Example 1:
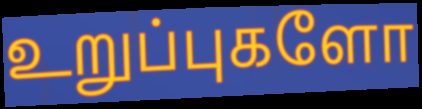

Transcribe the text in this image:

உறுப்புகளோ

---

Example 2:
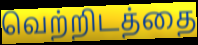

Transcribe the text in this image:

வெற்றிடத்தை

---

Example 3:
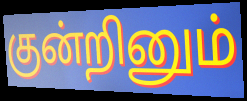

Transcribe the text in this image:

குன்றினும்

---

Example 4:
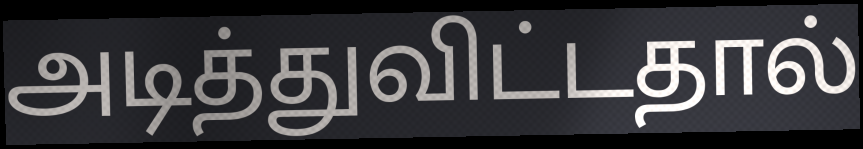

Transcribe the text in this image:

அடித்துவிட்டதால்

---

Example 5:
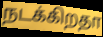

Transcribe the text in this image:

நடக்கிறதா